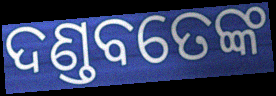
ଦଣ୍ଡବତେଙ୍କ